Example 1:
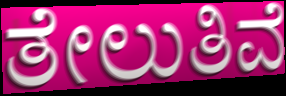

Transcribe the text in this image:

ತೇಲುತಿವೆ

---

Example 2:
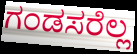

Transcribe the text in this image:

ಗಂಡಸರೆಲ್ಲ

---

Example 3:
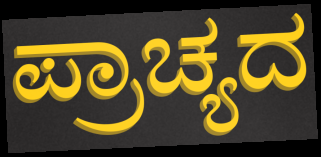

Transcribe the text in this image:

ಪ್ರಾಚ್ಯದ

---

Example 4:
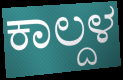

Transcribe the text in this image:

ಕಾಲ್ದಳ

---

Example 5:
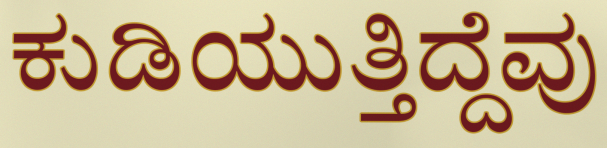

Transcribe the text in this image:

ಕುಡಿಯುತ್ತಿದ್ದೆವು